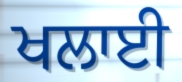
ਖਲਾਈ